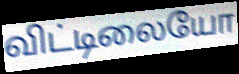
விட்டிலையோ